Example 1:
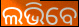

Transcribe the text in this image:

ଲଭିବେ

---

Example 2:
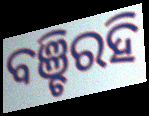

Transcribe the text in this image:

ବଞ୍ଚିରହି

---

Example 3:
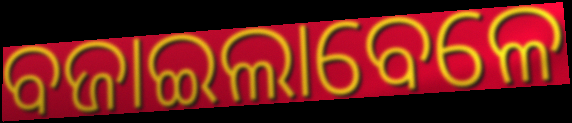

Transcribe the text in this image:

ବଜାଇଲାବେଳେ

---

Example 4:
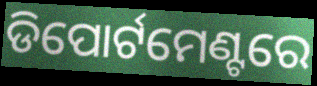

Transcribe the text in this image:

ଡିପୋର୍ଟମେଣ୍ଟରେ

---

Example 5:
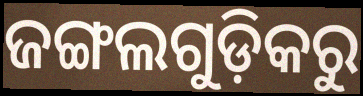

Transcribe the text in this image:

ଜଙ୍ଗଲଗୁଡ଼ିକରୁ